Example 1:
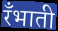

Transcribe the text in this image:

रँभाती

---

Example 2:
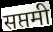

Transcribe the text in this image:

सप्तमी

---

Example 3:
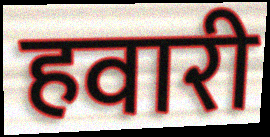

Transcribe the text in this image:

हवारी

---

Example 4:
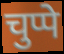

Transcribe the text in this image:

चुप्पे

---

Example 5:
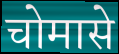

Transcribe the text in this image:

चोमासे